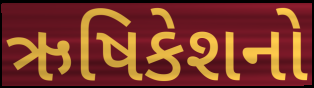
ઋષિકેશનો